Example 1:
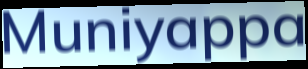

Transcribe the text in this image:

Muniyappa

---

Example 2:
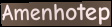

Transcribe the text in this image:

Amenhotep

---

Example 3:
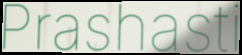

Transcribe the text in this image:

Prashasti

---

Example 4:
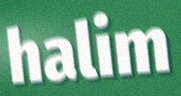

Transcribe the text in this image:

halim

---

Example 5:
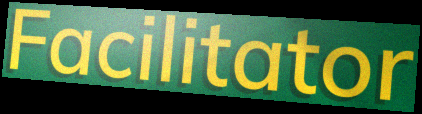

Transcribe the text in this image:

Facilitator